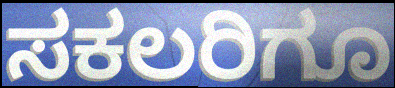
ಸಕಲರಿಗೂ